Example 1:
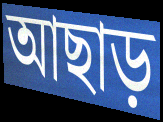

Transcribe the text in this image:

আছাড়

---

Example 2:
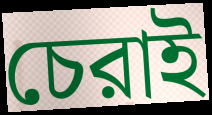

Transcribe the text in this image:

চেরাই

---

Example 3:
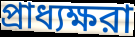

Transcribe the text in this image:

প্রাধ্যক্ষরা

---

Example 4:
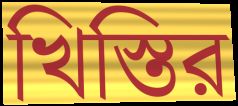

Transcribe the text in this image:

খিস্তির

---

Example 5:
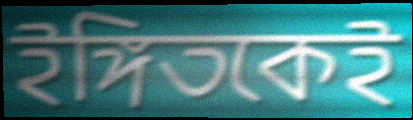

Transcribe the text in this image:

ইঙ্গিতকেই